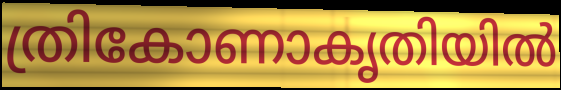
ത്രികോണാകൃതിയിൽ